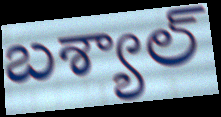
బశ్యాల్